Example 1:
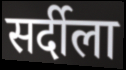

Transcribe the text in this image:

सर्दीला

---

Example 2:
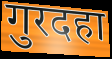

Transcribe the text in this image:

गुरदहा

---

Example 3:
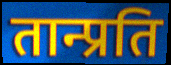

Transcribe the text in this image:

तान्प्रति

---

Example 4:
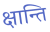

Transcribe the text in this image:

क्षान्ति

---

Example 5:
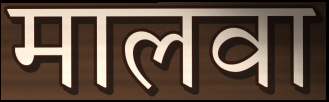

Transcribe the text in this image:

मालवा